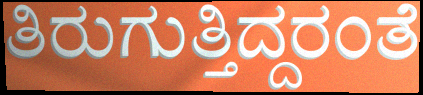
ತಿರುಗುತ್ತಿದ್ದರಂತೆ